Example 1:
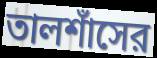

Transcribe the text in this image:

তালশাঁসের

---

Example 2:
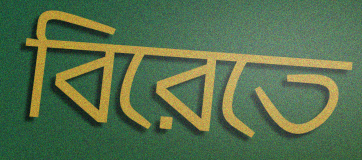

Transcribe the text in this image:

বিরেতে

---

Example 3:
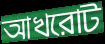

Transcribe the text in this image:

আখরোট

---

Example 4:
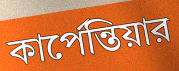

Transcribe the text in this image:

কার্পেন্তিয়ার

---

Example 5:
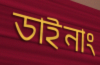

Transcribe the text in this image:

ডাইনাং